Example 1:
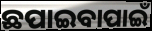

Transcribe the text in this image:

ଛପାଇବାପାଇଁ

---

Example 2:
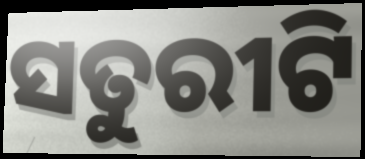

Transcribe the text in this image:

ସତୁରୀଟି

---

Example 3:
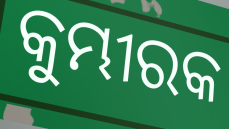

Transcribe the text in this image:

କୁମ୍ଭୀରକ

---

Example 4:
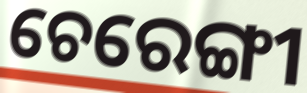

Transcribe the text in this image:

ଚେରେଙ୍ଗୀ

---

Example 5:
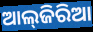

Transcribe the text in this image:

ଆଲ୍‌ଜିରିଆ